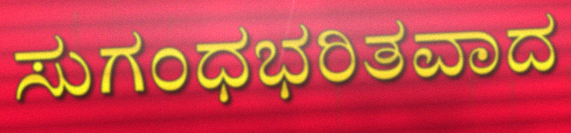
ಸುಗಂಧಭರಿತವಾದ